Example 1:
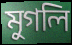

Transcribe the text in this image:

মুগলি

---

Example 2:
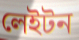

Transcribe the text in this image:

লেইটন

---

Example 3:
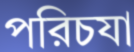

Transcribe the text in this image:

পরিচযা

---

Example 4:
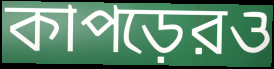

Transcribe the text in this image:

কাপড়েরও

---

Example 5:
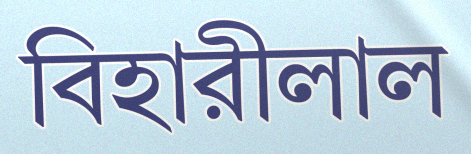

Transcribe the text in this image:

বিহারীলাল